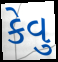
કેવુ